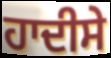
ਹਾਦੀਸੇ